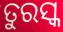
ତୁରସ୍କ